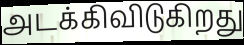
அடக்கிவிடுகிறது